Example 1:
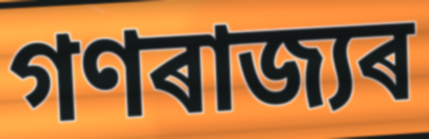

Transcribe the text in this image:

গণৰাজ্যৰ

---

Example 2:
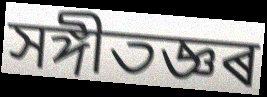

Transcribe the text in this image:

সঙ্গীতজ্ঞৰ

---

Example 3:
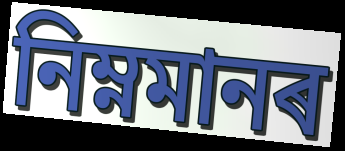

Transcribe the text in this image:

নিম্নমানৰ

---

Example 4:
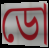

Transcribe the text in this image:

ডো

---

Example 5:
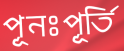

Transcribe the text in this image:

পূনঃপূৰ্তি